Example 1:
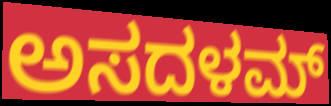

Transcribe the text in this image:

ಅಸದಳಮ್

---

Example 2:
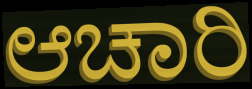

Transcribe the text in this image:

ಆಚಾರಿ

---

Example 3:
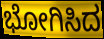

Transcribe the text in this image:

ಭೋಗಿಸಿದ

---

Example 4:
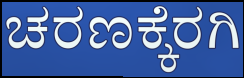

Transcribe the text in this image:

ಚರಣಕ್ಕೆರಗಿ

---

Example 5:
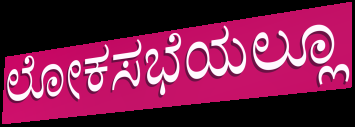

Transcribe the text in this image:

ಲೋಕಸಭೆಯಲ್ಲೂ